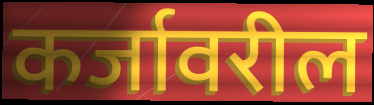
कर्जावरील